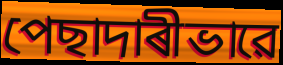
পেছাদাৰীভাৱে